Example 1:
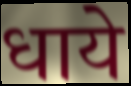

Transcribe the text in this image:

धाये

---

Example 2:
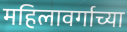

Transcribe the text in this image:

महिलावर्गाच्या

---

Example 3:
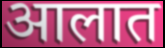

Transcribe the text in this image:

आलात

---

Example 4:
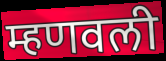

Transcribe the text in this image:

म्हणवली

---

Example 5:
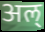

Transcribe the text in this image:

अल्